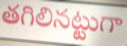
తగిలినట్టుగా